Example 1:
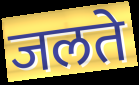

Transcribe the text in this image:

जलते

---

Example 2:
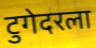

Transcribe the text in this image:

टुगेदरला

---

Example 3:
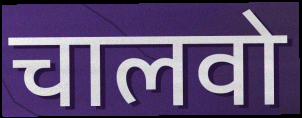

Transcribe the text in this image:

चालवो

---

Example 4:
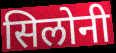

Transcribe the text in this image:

सिलोनी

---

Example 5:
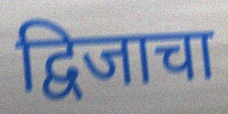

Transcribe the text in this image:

द्विजाचा